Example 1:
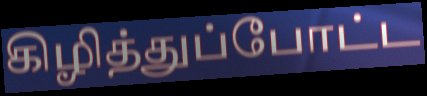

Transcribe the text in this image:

கிழித்துப்போட்ட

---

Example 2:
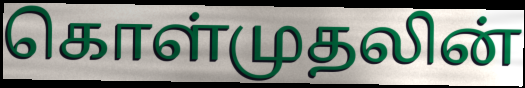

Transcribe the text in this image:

கொள்முதலின்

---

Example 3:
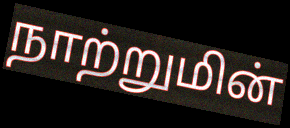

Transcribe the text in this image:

நாற்றுமின்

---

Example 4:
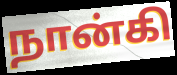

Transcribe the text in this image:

நான்கி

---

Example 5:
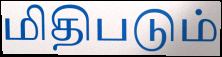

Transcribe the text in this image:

மிதிபடும்